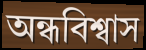
অন্ধবিশ্বাস